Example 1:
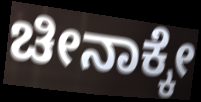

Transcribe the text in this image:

ಚೀನಾಕ್ಕೇ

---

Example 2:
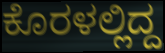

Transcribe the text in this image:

ಕೊರಳಲ್ಲಿದ್ದ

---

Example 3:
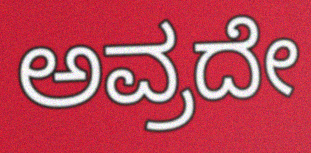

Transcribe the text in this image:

ಅವ್ರದೇ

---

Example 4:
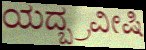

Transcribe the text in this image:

ಯದ್ಬ್ರವೀಷಿ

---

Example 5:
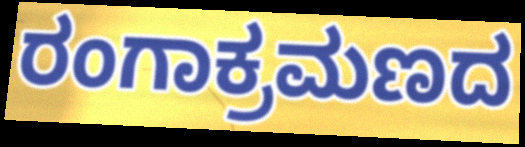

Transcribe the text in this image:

ರಂಗಾಕ್ರಮಣದ